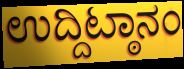
ಉದ್ದಿಟ್ಠಾನಂ